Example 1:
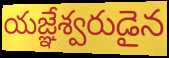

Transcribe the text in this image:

యజ్ఞేశ్వరుడైన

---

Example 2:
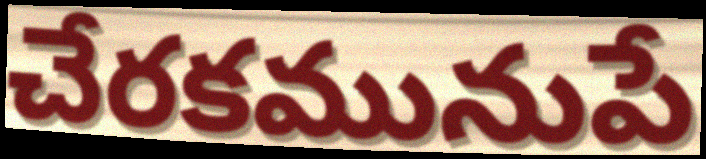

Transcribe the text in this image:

చేరకమునుపే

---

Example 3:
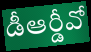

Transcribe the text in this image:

డీఆర్డీవో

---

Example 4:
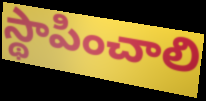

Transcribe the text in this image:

స్థాపించాలి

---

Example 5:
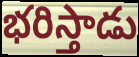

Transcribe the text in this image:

భరిస్తాడు